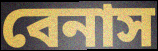
বেনাস